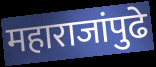
महाराजांपुढे